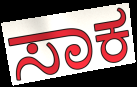
ಸಾಕ